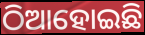
ଠିଆହୋଇଛି